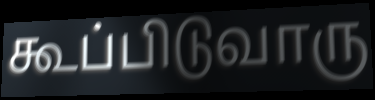
கூப்பிடுவாரு